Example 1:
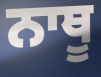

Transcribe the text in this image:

ਨਾਥੂ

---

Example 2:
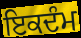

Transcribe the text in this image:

ਇਕਦੰਮ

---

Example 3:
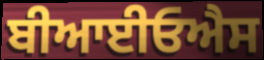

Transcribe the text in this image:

ਬੀਆਈਓਐਸ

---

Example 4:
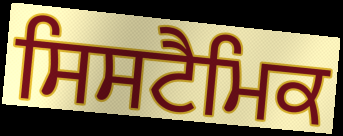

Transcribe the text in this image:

ਸਿਸਟੈਮਿਕ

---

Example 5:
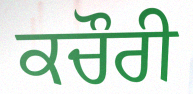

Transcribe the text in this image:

ਕਚੌਰੀ